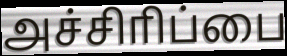
அச்சிரிப்பை